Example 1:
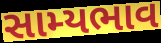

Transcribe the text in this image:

સામ્યભાવ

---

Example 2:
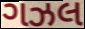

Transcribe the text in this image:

ગઝલ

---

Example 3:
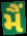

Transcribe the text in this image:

મૈં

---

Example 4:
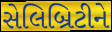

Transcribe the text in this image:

સેલિબ્રિટીને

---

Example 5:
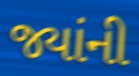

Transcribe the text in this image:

જ્યાંની